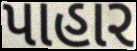
પાહાર